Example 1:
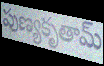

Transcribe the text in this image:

పుణ్యకృతామ్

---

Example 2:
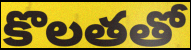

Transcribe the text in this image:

కొలతతో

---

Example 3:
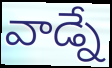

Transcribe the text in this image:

వాడ్నే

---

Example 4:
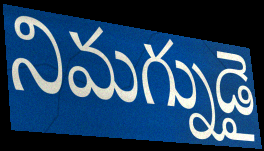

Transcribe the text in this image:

నిమగ్నుడై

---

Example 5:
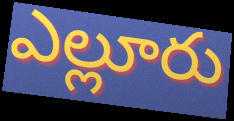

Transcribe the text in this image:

ఎల్లూరు